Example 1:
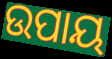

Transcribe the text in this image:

ଉପାୟ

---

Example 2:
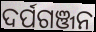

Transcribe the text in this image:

ଦର୍ପଗଞ୍ଜନ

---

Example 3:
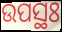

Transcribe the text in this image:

ଉପସ୍ଥଃ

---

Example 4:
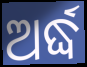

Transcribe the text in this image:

ଅର୍ଦ୍ଧ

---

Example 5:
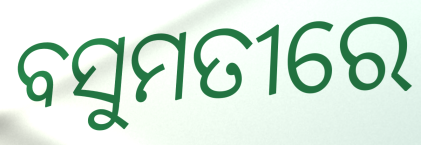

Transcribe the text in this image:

ବସୁମତୀରେ